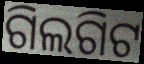
ଗିଲଗିଟ